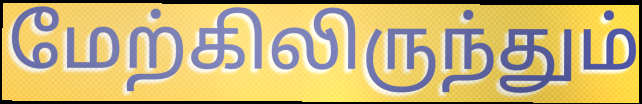
மேற்கிலிருந்தும்